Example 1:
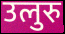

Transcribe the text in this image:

उलुरु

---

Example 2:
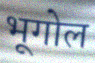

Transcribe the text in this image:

भूगोल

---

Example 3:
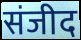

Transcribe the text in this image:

संजीद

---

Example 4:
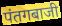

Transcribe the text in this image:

पंतगबाजी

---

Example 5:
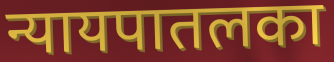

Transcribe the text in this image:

न्यायपातलका